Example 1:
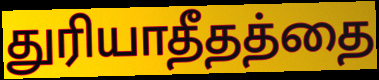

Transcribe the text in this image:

துரியாதீதத்தை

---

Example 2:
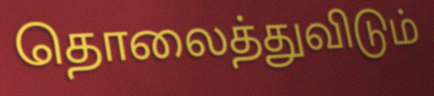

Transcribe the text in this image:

தொலைத்துவிடும்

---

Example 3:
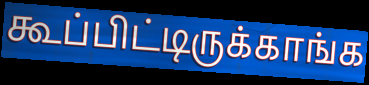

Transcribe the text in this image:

கூப்பிட்டிருக்காங்க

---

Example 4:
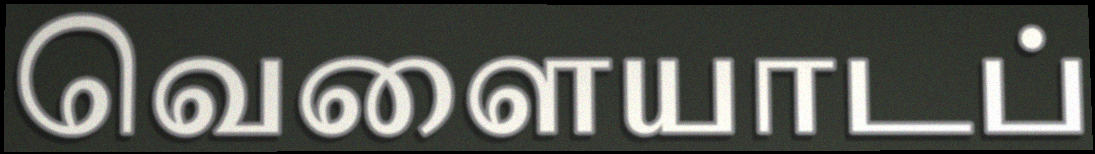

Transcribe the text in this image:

வெளையாடப்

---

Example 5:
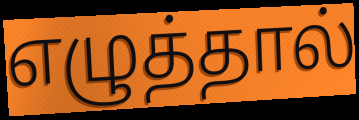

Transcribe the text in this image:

எழுத்தால்